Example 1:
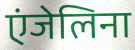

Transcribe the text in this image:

एंजेलिना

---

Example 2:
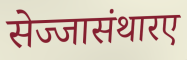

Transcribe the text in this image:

सेज्जासंथारए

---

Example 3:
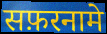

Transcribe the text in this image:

सफ़रनामे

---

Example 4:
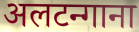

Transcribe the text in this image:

अलटन्गाना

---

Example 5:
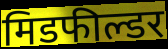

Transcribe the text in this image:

मिडफील्डर